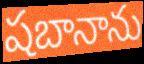
షబానాను